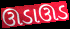
ઊડાઊડ